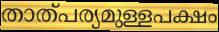
താത്പര്യമുള്ളപക്ഷം